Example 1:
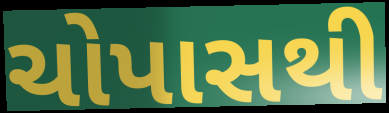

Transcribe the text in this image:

ચોપાસથી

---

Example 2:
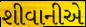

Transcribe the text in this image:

શીવાનીએ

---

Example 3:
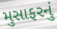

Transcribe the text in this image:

મુસાફરનું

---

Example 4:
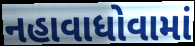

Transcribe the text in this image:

નહાવાધોવામાં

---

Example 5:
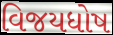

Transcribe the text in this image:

વિજયધોષ